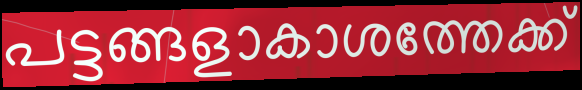
പട്ടങ്ങളാകാശത്തേക്ക്